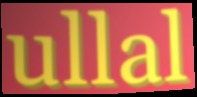
ullal